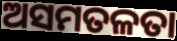
ଅସମତଳତା